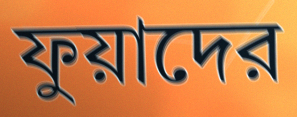
ফুয়াদের